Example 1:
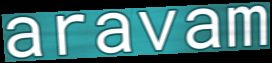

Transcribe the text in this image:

aravam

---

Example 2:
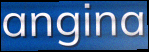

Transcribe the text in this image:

angina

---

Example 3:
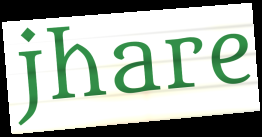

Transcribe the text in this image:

jhare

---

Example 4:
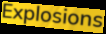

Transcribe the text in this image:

Explosions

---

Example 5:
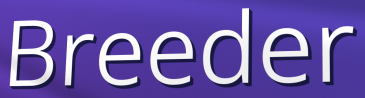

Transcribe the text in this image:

Breeder